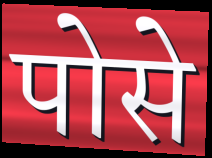
पोसे